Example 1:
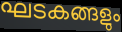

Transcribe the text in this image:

ഘടകങ്ങളും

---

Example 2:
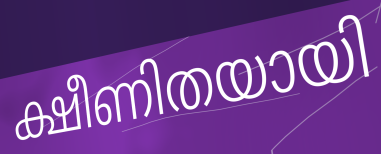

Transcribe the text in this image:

ക്ഷീണിതയായി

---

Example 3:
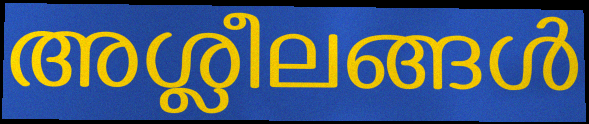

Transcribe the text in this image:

അശ്ലീലങ്ങൾ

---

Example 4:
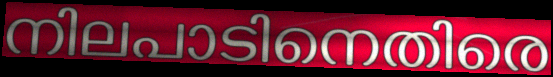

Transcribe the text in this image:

നിലപാടിനെതിരെ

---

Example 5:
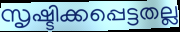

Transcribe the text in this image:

സൃഷ്ടിക്കപ്പെട്ടതല്ല